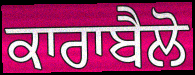
ਕਾਰਾਬੈਲੋ